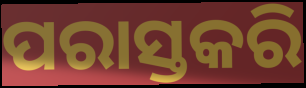
ପରାସ୍ତକରି